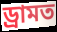
ড্ৰামত